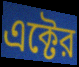
এক্টের